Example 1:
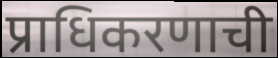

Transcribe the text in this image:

प्राधिकरणाची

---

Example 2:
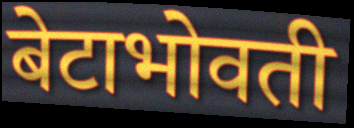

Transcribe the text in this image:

बेटाभोवती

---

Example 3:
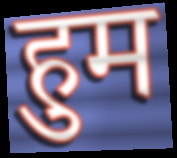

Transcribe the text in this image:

हुम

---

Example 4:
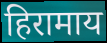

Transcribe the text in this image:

हिरामाय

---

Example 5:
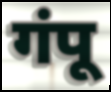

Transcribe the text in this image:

गंपू